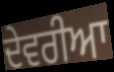
ਦੇਵਰੀਆ